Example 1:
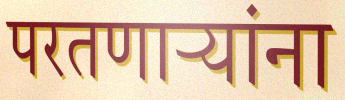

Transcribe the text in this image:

परतणाऱ्यांना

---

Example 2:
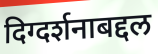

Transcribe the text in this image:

दिग्दर्शनाबद्दल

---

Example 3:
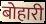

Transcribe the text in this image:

बोहारी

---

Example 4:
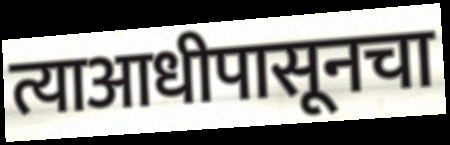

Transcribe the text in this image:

त्याआधीपासूनचा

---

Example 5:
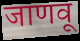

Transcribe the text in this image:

जाणवू